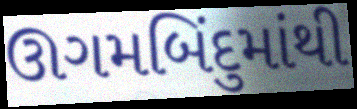
ઊગમબિંદુમાંથી